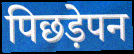
पिछड़ेपन